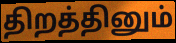
திறத்தினும்